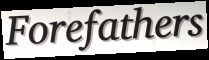
Forefathers